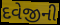
દવેજીની